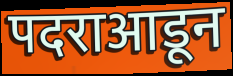
पदराआडून